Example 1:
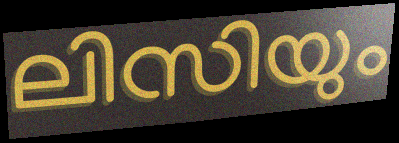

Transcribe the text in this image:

ലിസിയും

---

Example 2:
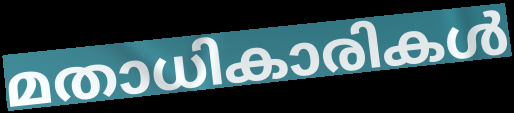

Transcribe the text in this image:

മതാധികാരികൾ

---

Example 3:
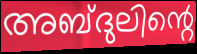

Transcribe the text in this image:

അബ്ദുലിന്റെ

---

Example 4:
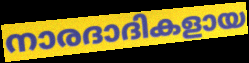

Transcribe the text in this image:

നാരദാദികളായ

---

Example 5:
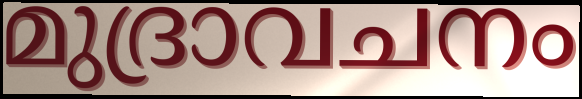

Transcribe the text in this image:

മുദ്രാവചനം